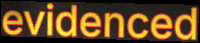
evidenced